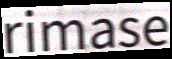
rimase